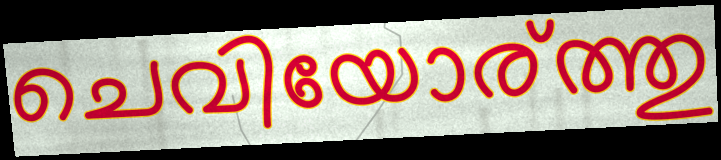
ചെവിയോര്ത്തു